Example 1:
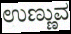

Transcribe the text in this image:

ಉಣ್ಣುವ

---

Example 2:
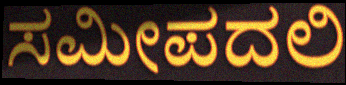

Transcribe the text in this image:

ಸಮೀಪದಲಿ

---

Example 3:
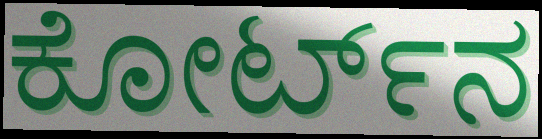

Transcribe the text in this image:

ಕೋರ್ಟ್‌ನ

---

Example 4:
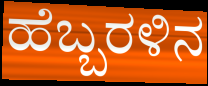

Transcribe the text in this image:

ಹೆಬ್ಬರಳಿನ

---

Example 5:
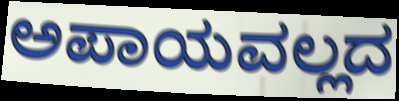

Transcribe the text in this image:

ಅಪಾಯವಲ್ಲದ